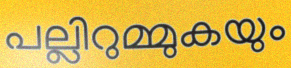
പല്ലിറുമ്മുകയും